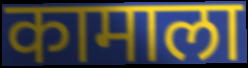
कामाला